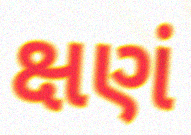
ક્ષણં